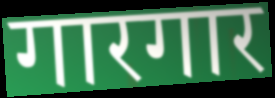
गारगार